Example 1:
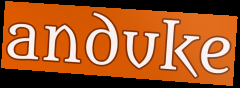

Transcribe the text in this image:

anduke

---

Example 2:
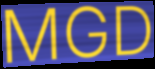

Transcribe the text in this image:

MGD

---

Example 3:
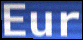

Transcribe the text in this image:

Eur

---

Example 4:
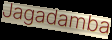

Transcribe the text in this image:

Jagadamba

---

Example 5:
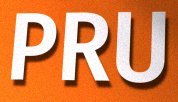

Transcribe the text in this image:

PRU